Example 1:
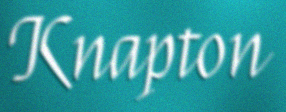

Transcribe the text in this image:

Knapton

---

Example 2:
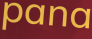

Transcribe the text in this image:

pana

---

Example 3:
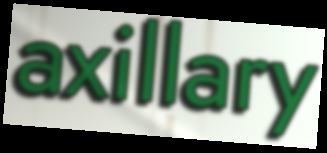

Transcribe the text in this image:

axillary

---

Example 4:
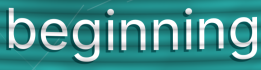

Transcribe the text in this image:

beginning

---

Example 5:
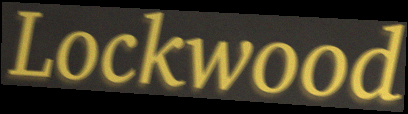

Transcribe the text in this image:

Lockwood